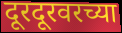
दूरदूरवरच्या